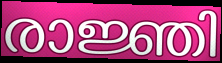
രാജ്ഞി